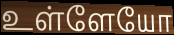
உள்ளேயோ